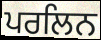
ਪਰਲਿਨ